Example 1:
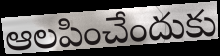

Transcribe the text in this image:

ఆలపించేందుకు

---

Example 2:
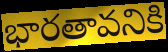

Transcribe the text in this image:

భారతావనికి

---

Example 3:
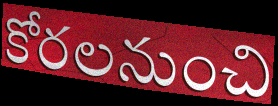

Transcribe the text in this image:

కోరలనుంచి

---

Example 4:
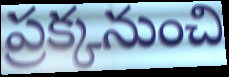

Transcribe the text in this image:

ప్రక్కనుంచి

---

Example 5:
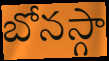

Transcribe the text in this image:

బోనస్గా